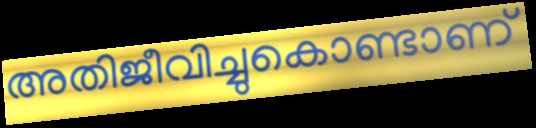
അതിജീവിച്ചുകൊണ്ടാണ്